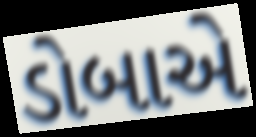
ડોબાએ